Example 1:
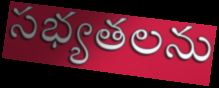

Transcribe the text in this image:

సభ్యతలను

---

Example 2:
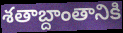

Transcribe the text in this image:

శతాబ్దాంతానికి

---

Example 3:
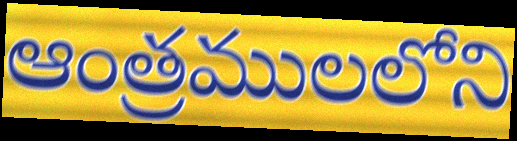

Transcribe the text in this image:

ఆంత్రములలోని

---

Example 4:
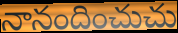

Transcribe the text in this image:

నానందించుచు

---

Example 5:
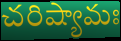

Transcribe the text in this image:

చరిష్యామః